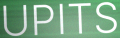
UPITS